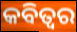
କବିତ୍ଵର